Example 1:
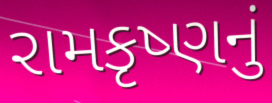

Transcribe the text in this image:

રામકૃષ્ણનું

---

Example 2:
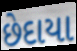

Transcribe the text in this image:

છેદાયા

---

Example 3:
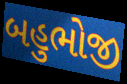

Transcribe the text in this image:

બહુભોજી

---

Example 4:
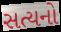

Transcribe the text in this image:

સત્યનો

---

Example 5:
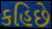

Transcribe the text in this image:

કહિછે